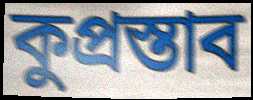
কুপ্রস্তাব